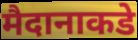
मैदानाकडे